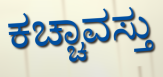
ಕಚ್ಚಾವಸ್ತು